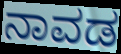
ನಾವಡ